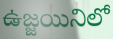
ఉజ్జయినిలో